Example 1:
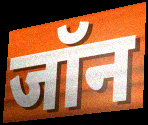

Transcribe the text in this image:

जॉन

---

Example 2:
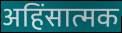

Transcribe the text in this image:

अहिंसात्मक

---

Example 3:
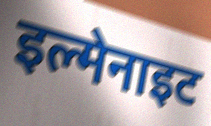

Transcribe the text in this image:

इल्मेनाइट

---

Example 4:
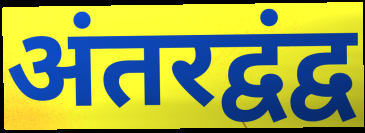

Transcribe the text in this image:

अंतरद्वंद्व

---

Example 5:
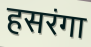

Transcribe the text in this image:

हसरंगा